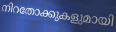
നിറതോക്കുകളുമായി